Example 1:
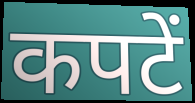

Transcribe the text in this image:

कपटें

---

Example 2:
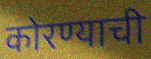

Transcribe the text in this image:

कोरण्याची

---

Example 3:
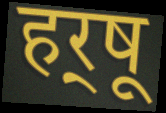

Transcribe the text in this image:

हर्षू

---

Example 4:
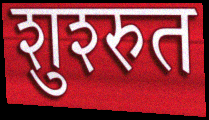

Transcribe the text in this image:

शुश्रुत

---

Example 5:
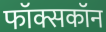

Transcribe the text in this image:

फॉक्सकॉन